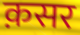
क़सर